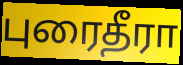
புரைதீரா